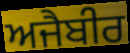
ਅਜੈਬੀਰ